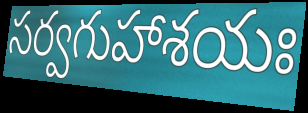
సర్వగుహాశయః